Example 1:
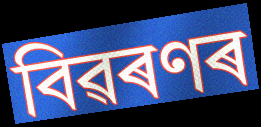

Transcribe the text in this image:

বিৱৰণৰ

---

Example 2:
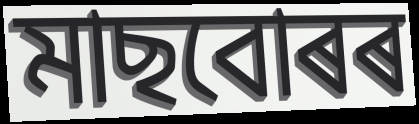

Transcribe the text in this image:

মাছবোৰৰ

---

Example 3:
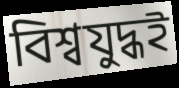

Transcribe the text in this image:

বিশ্বযুদ্ধই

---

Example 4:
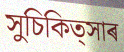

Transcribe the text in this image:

সুচিকিত্সাৰ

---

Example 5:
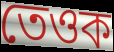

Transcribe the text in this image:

তেওক